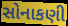
સોનાકણી